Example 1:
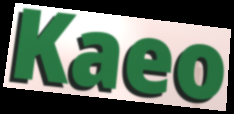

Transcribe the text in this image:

Kaeo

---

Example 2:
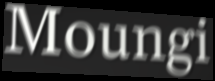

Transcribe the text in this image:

Moungi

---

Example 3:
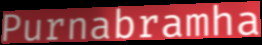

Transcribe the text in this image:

Purnabramha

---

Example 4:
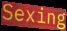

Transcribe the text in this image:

Sexing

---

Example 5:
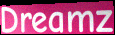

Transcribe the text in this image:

Dreamz